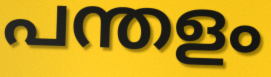
പന്തളം